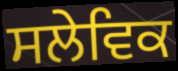
ਸਲੇਵਿਕ